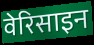
वेरिसाइन